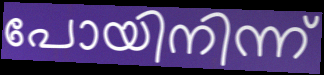
പോയിനിന്ന്